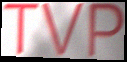
TVP